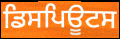
ਡਿਸਪਿਊਟਸ